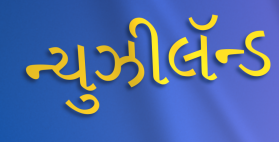
ન્યુઝીલૅન્ડ